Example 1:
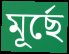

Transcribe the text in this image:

মূর্ছে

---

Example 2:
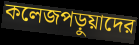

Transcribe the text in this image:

কলেজপড়ুয়াদের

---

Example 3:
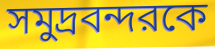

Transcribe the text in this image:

সমুদ্রবন্দরকে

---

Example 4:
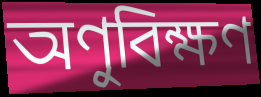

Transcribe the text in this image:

অণুবিক্ষণ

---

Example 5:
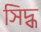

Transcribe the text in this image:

সিদ্ধ